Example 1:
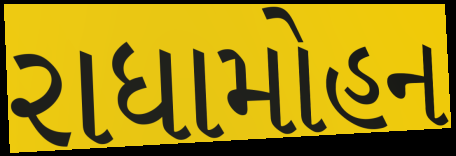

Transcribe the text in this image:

રાધામોહન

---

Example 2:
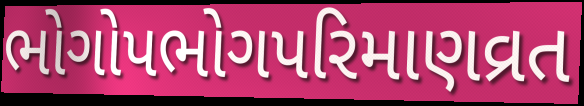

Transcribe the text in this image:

ભોગોપભોગપરિમાણવ્રત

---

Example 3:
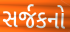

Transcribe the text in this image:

સર્જકનો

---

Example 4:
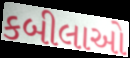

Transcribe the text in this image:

કબીલાઓ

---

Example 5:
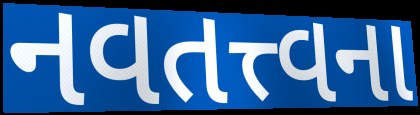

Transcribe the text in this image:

નવતત્ત્વના